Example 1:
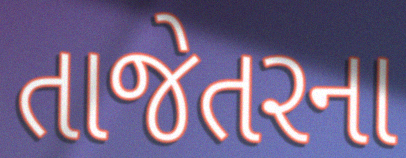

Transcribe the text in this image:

તાજેતરના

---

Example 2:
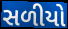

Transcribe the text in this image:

સળીયો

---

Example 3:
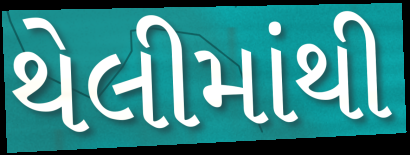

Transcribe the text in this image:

થેલીમાંથી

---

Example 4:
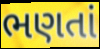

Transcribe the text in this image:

ભણતાં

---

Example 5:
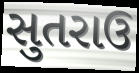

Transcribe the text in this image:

સુતરાઉ